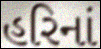
હરિનાં